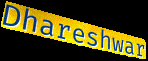
Dhareshwar